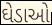
ઘેડાઓ